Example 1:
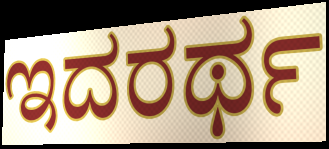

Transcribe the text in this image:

ಇದರರ್ಥ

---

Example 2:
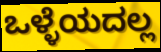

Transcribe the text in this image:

ಒಳ್ಳೆಯದಲ್ಲ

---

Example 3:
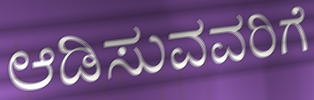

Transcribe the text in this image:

ಆಡಿಸುವವರಿಗೆ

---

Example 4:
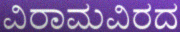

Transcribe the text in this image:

ವಿರಾಮವಿರದ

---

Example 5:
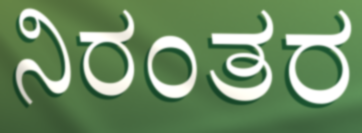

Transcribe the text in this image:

ನಿರಂತರ